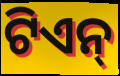
ଟିଏନ୍